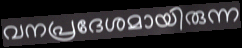
വനപ്രദേശമായിരുന്ന